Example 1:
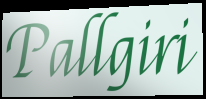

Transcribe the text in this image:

Pallgiri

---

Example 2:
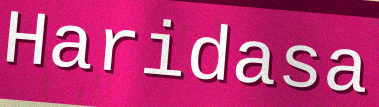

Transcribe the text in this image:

Haridasa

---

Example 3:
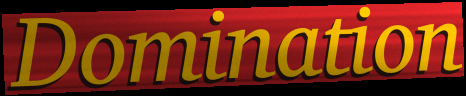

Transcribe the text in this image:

Domination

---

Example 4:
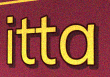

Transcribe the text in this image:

itta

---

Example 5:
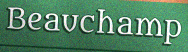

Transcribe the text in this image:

Beauchamp